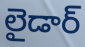
లైడార్